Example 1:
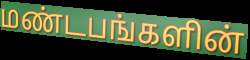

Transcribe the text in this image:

மண்டபங்களின்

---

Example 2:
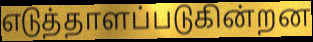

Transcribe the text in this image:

எடுத்தாளப்படுகின்றன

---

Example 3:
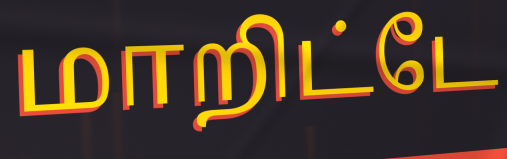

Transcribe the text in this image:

மாறிட்டே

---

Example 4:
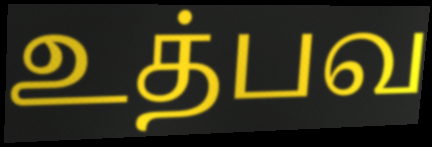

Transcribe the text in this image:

உத்பவ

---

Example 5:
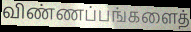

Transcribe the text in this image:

விண்ணப்பங்களைத்